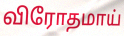
விரோதமாய்